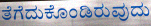
ತೆಗೆದುಕೊಂಡಿರುವುದು